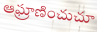
ఆఘ్రాణించుచూ